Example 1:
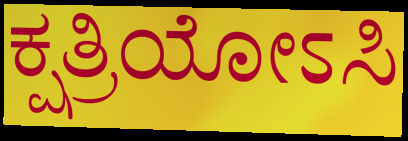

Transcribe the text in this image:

ಕ್ಷತ್ರಿಯೋಽಸಿ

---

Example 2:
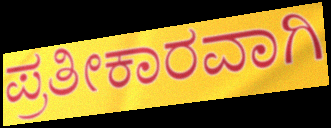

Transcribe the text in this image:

ಪ್ರತೀಕಾರವಾಗಿ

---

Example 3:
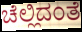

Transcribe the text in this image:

ಚೆಲ್ಲಿದಂತೆ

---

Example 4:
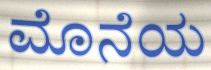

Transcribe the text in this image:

ಮೊನೆಯ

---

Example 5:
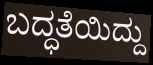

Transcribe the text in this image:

ಬದ್ಧತೆಯಿದ್ದು